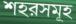
শহরসমূহ